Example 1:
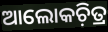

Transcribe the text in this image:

ଆଲୋକଚ଼ିତ୍ର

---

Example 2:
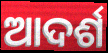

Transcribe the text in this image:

ଆଦର୍ଶ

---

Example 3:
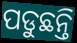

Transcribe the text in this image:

ପଡୁଛନ୍ତି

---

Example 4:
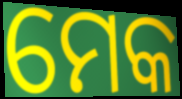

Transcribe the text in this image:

ମେକ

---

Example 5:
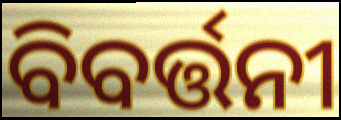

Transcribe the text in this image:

ବିବର୍ତ୍ତନୀ